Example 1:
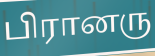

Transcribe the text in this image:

பிரானரு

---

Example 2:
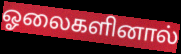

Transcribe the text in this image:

ஓலைகளினால்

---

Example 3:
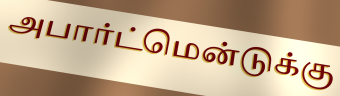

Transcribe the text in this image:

அபார்ட்மென்டுக்கு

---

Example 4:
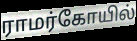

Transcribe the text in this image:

ராமர்கோயில்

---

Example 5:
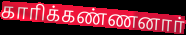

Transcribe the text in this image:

காரிக்கண்ணனார்